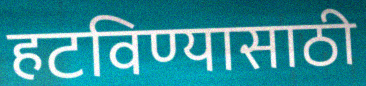
हटविण्यासाठी